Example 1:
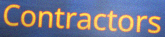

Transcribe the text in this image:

Contractors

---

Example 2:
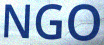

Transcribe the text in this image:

NGO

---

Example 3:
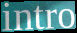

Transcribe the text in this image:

intro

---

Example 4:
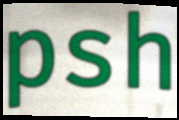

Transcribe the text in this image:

psh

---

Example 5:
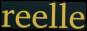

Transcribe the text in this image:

reelle